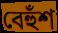
বেহুঁশ